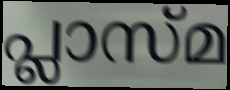
പ്ലാസ്മ